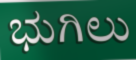
ಭುಗಿಲು